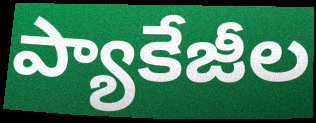
ప్యాకేజీల